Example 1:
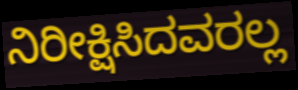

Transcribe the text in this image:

ನಿರೀಕ್ಷಿಸಿದವರಲ್ಲ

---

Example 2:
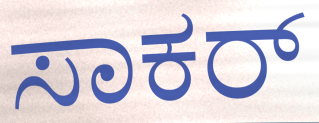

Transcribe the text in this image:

ಸಾಕರ್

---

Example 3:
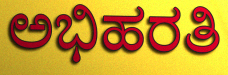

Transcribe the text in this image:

ಅಭಿಹರತಿ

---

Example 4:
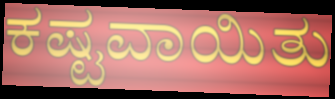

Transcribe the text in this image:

ಕಷ್ಟವಾಯಿತು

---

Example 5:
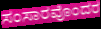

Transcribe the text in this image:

ಸಂಸಾರವೊಂದರ